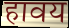
हावय